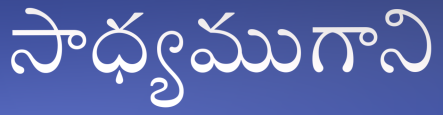
సాధ్యముగాని